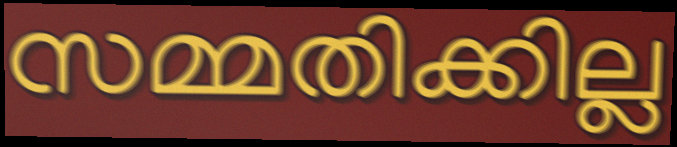
സമ്മതിക്കില്ല